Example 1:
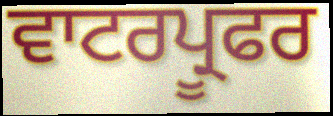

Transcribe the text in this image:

ਵਾਟਰਪ੍ਰੂਫਰ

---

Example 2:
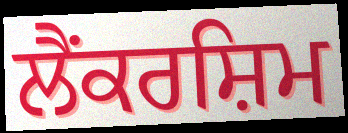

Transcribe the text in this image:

ਲੈਂਕਰਸ਼ਿਮ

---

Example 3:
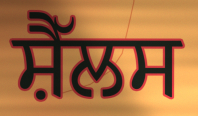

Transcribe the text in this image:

ਸ਼ੈੱਲਸ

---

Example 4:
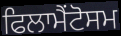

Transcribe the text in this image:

ਫਿਲਾਮੈਂਟੋਸਮ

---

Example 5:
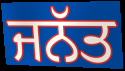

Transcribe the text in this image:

ਜਨੱਤ